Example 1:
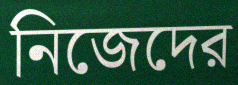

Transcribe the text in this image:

নিজেদের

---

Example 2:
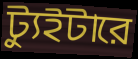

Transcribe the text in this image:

ট্যুইটারে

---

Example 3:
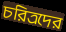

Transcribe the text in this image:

চরিত্রদের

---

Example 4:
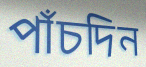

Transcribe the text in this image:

পাঁচদিন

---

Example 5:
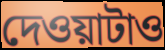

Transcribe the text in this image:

দেওয়াটাও